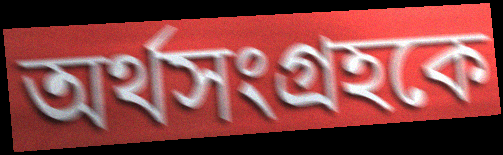
অর্থসংগ্রহকে